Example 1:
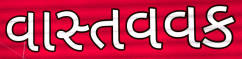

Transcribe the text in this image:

વાસ્તવવક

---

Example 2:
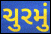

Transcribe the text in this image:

ચુરમું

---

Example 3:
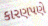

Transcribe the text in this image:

કારણપણે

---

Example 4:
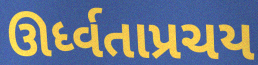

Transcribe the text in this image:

ઊર્ધ્વતાપ્રચય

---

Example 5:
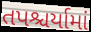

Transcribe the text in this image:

તપશ્ચર્યામાં